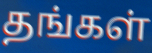
தங்கள்